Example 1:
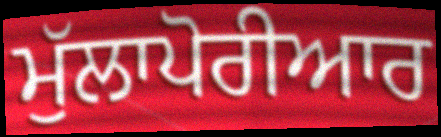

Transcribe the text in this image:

ਮੁੱਲਾਪੋਰੀਆਰ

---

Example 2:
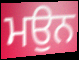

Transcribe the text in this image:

ਮਉਨ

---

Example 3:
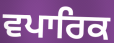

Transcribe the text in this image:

ਵਪਾਰਿਕ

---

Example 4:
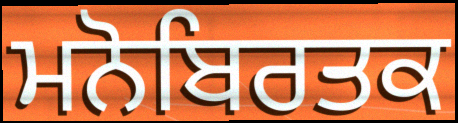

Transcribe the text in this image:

ਮਨੋਬਿਰਤਕ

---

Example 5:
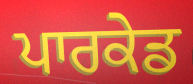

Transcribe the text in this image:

ਪਾਰਕੇਡ